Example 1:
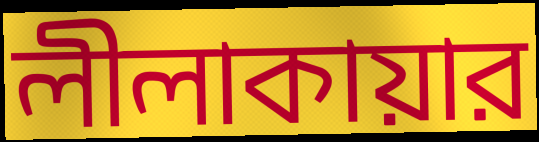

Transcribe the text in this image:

লীলাকায়ার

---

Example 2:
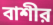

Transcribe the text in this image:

বাশীর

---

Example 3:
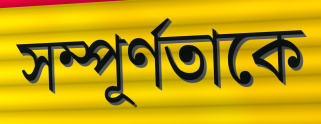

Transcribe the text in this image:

সম্পূর্ণতাকে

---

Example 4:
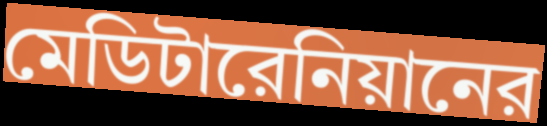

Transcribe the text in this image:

মেডিটারেনিয়ানের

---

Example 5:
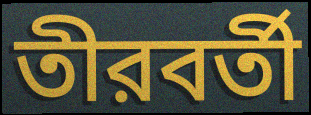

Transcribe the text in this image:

তীরবর্তী